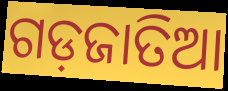
ଗଡ଼ଜାତିଆ